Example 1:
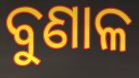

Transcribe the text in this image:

ବୁଣାଳ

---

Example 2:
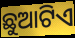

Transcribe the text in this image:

ଛୁଆଟିଏ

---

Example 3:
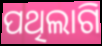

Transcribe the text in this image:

ପଥିଲାଗି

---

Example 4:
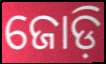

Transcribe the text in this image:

ଜୋଡ଼ି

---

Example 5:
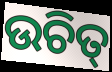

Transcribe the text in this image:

ଉଚିତ୍